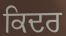
ਕਿਦਰ